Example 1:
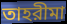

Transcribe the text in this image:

তাহরীমা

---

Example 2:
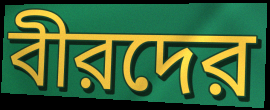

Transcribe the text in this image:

বীরদের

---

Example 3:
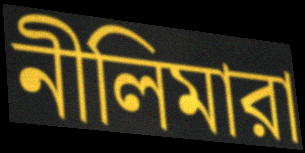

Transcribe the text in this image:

নীলিমারা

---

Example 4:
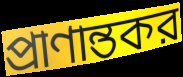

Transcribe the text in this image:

প্রাণান্তকর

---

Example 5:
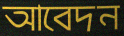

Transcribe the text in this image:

আবেদন